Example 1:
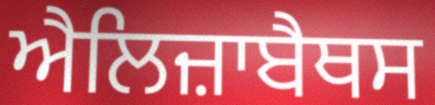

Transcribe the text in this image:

ਐਲਿਜ਼ਾਬੈਥਸ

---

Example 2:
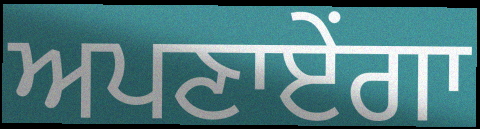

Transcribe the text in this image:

ਅਪਣਾਏਂਗਾ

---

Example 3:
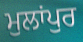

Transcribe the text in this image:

ਮੁਲਾਂਪੁਰ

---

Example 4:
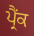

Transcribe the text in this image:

ਪ੍ਰੈਂਕ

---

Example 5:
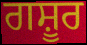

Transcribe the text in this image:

ਗਸ਼ੂਰ